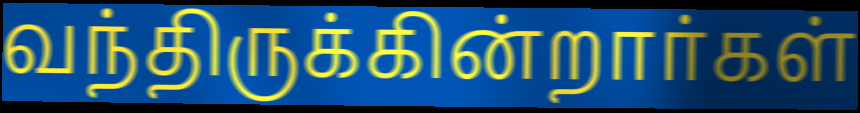
வந்திருக்கின்றார்கள்